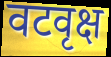
वटवृक्ष